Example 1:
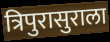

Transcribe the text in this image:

त्रिपुरासुराला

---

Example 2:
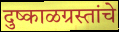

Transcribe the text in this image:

दुष्काळग्रस्तांचे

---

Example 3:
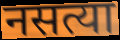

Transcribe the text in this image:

नसत्या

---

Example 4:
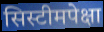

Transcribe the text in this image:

सिस्टीमपेक्षा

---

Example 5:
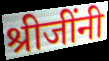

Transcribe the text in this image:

श्रीजींनी